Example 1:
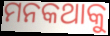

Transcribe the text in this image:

ମନକଥାକୁ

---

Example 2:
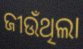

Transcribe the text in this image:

ଜୀଉଁଥିଲା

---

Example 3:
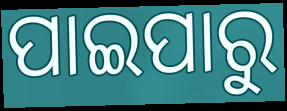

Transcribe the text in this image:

ପାଇପାରୁ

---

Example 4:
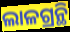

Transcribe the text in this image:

ଲାଳଗ୍ରନ୍ଥି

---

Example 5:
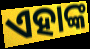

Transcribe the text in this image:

ଏହାଙ୍କ